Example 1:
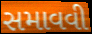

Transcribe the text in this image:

સમાવવી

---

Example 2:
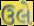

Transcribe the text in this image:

ઉલે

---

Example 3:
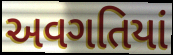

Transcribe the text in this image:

અવગતિયાં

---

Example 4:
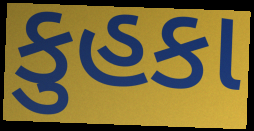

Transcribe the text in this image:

કુહકા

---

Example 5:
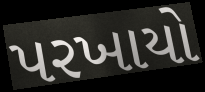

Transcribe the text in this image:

પરખાયો